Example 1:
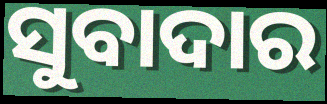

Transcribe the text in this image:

ସୁବାଦାର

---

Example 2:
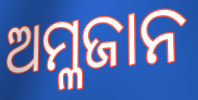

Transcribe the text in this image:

ଅମ୍ଳଜାନ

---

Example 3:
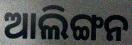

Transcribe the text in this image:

ଆଲିଙ୍ଗନ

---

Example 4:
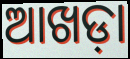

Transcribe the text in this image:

ଆଖଡ଼ା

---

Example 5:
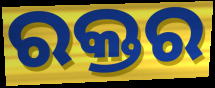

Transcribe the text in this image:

ରକ୍ତର